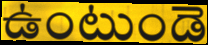
ఉంటుండె